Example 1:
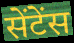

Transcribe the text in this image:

सेंटेंस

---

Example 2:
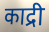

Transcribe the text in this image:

काद्री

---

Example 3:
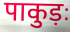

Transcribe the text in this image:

पाकुड़ः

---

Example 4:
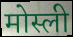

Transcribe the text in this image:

मोस्ली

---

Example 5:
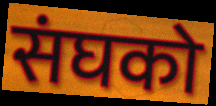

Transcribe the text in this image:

संघको